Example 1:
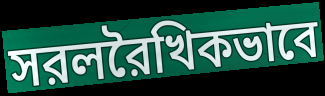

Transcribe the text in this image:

সরলরৈখিকভাবে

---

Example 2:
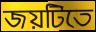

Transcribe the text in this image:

জয়টিতে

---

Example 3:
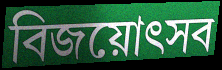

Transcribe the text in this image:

বিজয়োৎসব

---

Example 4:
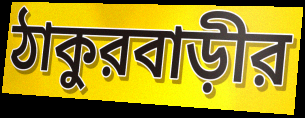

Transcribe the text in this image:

ঠাকুরবাড়ীর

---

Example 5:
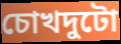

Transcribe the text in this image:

চোখদুটো